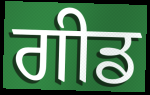
ਗੀਡ